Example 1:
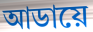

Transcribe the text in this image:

আডায়ে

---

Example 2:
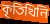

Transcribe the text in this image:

কৃতিখিনি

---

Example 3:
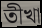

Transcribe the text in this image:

তীখা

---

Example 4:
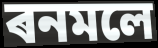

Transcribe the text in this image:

ৰনমলে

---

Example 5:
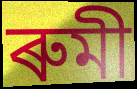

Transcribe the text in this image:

ৰুমী